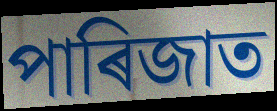
পাৰিজাত